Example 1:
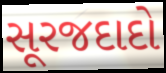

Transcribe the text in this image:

સૂરજદાદો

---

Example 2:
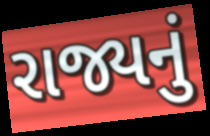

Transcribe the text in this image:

રાજ્યનું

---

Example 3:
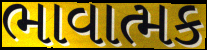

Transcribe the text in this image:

ભાવાત્મક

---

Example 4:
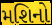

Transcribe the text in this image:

મશિનો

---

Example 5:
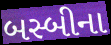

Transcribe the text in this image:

બસ્બીના